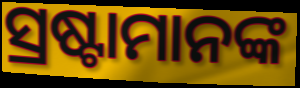
ସ୍ରଷ୍ଟାମାନଙ୍କ